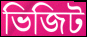
ভিজিট